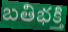
బతిభక్తి